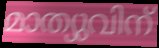
മാത്യുവിന്